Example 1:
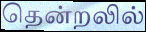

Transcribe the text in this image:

தென்றலில்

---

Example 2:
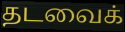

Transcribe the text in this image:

தடவைக்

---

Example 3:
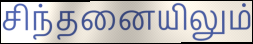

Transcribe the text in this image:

சிந்தனையிலும்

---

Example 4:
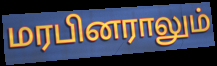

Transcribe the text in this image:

மரபினராலும்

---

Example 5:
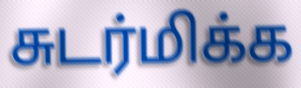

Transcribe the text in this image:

சுடர்மிக்க